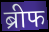
ब्रीफ